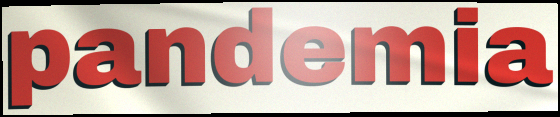
pandemia